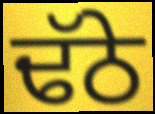
ਢੱਠੇ